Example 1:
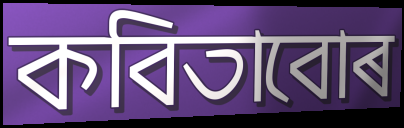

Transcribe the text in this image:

কবিতাবোৰ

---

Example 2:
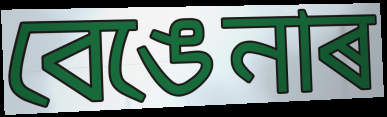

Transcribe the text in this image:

বেঙেনাৰ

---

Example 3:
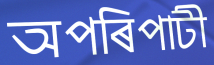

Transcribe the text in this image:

অপৰিপাটী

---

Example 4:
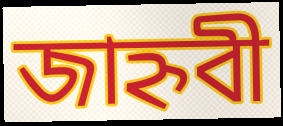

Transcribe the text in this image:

জাহ্নবী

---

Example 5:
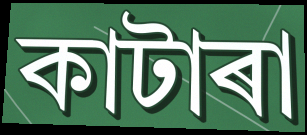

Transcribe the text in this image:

কাটাৰা